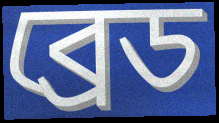
ব্রেড